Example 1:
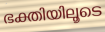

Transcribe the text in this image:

ഭക്തിയിലൂടെ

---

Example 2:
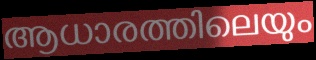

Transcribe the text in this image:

ആധാരത്തിലെയും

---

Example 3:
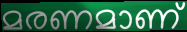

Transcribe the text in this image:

മരണമാണ്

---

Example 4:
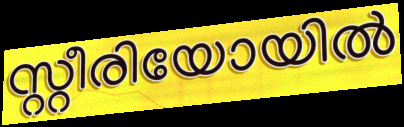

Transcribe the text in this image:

സ്റ്റീരിയോയിൽ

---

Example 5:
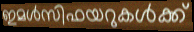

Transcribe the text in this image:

ഇമൾസിഫയറുകൾക്ക്